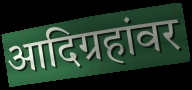
आदिग्रहांवर